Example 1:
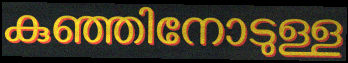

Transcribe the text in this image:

കുഞ്ഞിനോടുള്ള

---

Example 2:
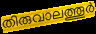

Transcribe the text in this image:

തിരുവാലത്തൂർ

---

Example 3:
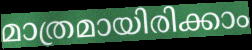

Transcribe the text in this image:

മാത്രമായിരിക്കാം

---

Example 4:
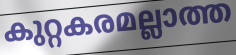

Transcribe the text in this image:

കുറ്റകരമല്ലാത്ത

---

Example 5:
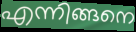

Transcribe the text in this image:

എന്നിങ്ങനെ